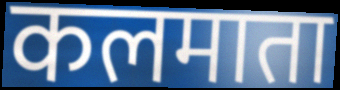
कलमाता